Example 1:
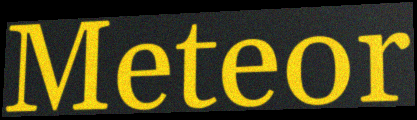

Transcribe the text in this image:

Meteor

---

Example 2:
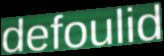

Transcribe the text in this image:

defoulid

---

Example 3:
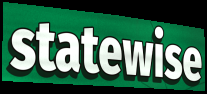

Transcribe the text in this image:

statewise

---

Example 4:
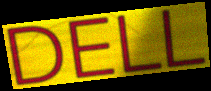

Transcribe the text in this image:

DELL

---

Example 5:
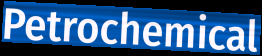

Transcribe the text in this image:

Petrochemical